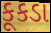
કૂકડા